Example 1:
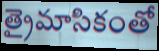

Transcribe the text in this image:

త్రైమాసికంతో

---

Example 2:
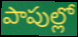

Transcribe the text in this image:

పాపుల్లో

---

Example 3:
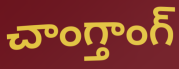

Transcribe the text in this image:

చాంగ్తాంగ్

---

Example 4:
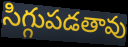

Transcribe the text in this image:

సిగ్గుపడతావు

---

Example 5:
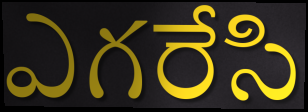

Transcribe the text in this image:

ఎగరేసి